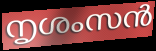
നൃശംസൻ